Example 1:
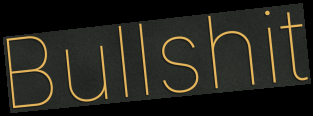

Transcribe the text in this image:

Bullshit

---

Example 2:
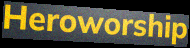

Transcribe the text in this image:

Heroworship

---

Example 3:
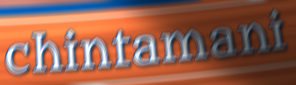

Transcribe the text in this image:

chintamani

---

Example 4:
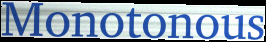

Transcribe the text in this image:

Monotonous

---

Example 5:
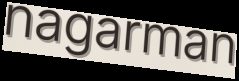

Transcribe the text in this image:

nagarman